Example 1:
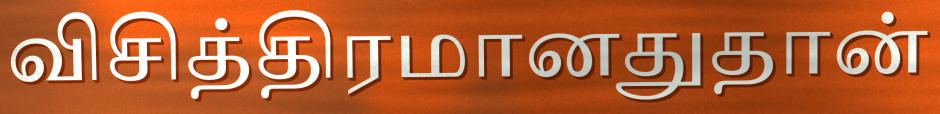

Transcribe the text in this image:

விசித்திரமானதுதான்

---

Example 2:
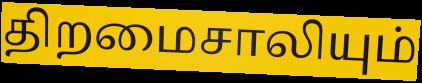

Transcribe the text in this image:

திறமைசாலியும்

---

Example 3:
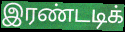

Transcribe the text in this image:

இரண்டடிக்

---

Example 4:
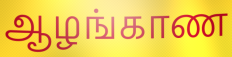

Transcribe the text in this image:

ஆழங்காண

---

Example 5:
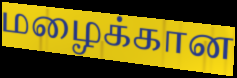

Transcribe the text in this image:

மழைக்கான